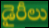
డైరీలు